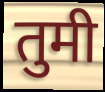
तुमी